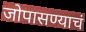
जोपासण्याचं